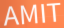
AMIT